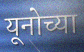
यूनोच्या